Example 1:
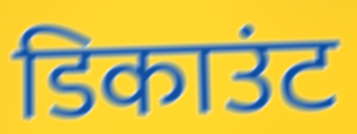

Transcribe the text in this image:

डिकाउंट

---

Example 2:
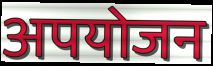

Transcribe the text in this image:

अपयोजन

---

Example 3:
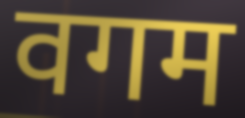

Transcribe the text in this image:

वगम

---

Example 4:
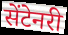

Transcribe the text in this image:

सेंटेनरी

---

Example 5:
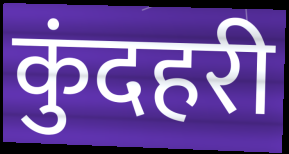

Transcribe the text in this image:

कुंदहरी